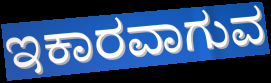
ಇಕಾರವಾಗುವ